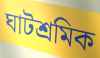
ঘাটশ্রমিক